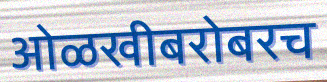
ओळखीबरोबरच